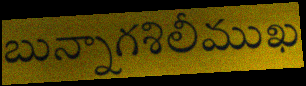
బున్నాగశిలీముఖ